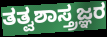
ತತ್ವಶಾಸ್ತ್ರಜ್ಞರ